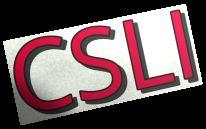
CSLI